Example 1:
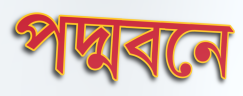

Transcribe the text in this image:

পদ্মবনে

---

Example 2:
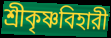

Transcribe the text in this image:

শ্রীকৃষ্ণবিহারী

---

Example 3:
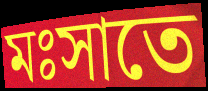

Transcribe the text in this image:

মঃসাতে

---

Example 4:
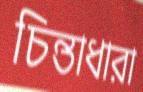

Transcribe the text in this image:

চিন্তাধারা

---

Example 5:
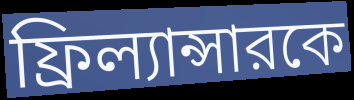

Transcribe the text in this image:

ফ্রিল্যান্সারকে